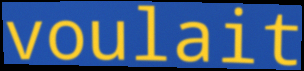
voulait